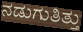
ನಡುಗುತಿತ್ತು